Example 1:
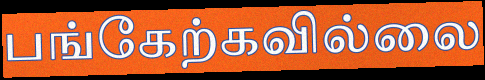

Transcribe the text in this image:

பங்கேற்கவில்லை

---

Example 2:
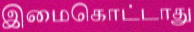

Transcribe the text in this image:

இமைகொட்டாது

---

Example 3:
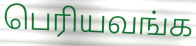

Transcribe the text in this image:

பெரியவங்க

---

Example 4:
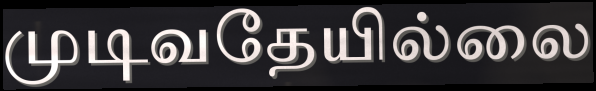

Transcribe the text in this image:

முடிவதேயில்லை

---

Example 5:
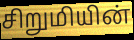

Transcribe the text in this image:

சிறுமியின்